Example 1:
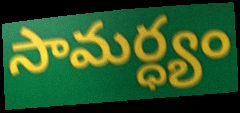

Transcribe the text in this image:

సామర్ధ్యం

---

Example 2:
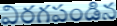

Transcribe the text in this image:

విరగపండిన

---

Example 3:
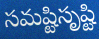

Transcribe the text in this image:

సమష్టిసృష్టి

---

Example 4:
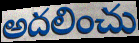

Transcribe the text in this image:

అదలించు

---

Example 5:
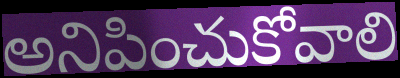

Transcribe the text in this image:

అనిపించుకోవాలి